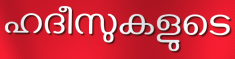
ഹദീസുകളുടെ